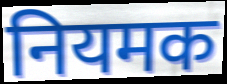
नियमक